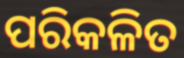
ପରିକଳିତ